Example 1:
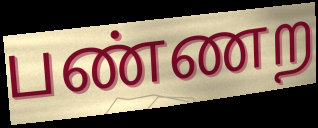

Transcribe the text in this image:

பண்ணற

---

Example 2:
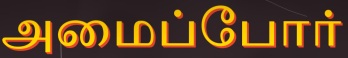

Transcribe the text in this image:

அமைப்போர்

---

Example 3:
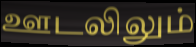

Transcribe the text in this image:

ஊடலிலும்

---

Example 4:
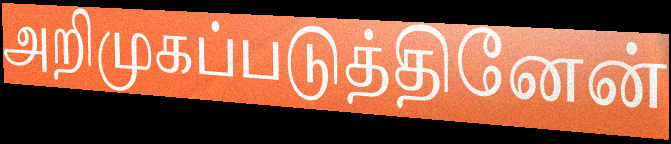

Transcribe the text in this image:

அறிமுகப்படுத்தினேன்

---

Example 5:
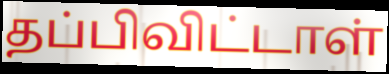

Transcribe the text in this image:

தப்பிவிட்டாள்